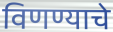
विणण्याचे